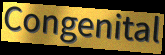
Congenital